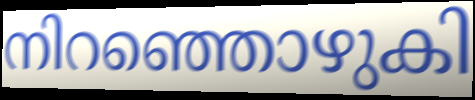
നിറഞ്ഞൊഴുകി